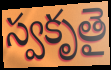
స్వకృతై